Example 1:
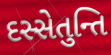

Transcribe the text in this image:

દસ્સેતુન્તિ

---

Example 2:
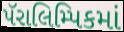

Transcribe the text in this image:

પૅરાલિમ્પિકમાં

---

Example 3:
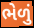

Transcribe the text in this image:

ભેળું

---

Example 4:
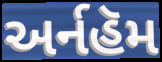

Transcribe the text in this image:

અર્નહૅમ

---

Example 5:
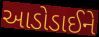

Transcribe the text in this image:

આડોડાઈને